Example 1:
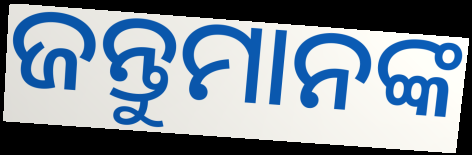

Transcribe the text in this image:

ଜନ୍ତୁମାନଙ୍କ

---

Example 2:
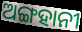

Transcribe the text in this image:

ଅଙ୍ଗହାନୀ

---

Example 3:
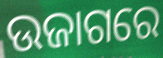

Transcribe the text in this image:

ଉଜାଗରେ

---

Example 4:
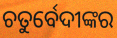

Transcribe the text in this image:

ଚତୁର୍ବେଦୀଙ୍କର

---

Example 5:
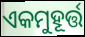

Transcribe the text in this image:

ଏକମୁହୂର୍ତ୍ତ